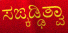
ಸಙ್ಕಡ್ಢಿತ್ವಾ